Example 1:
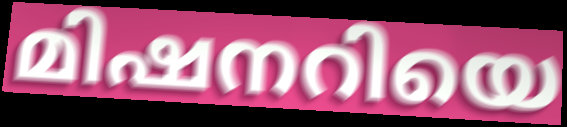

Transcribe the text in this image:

മിഷനറിയെ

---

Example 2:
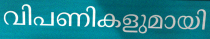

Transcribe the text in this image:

വിപണികളുമായി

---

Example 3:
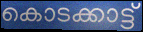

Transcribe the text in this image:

കൊടക്കാട്ട്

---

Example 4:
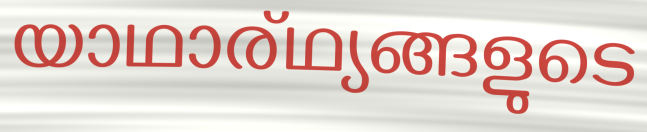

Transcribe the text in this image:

യാഥാര്ഥ്യങ്ങളുടെ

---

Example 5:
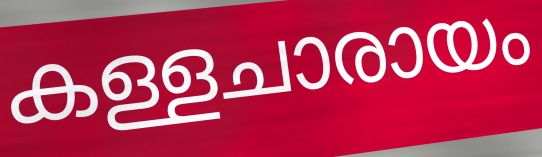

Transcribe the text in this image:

കള്ളചാരായം